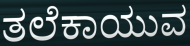
ತಲೆಕಾಯುವ